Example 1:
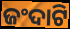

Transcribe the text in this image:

ଜଂଦାଟି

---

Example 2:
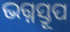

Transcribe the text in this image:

ଭଗ୍ନସ୍ତୂପ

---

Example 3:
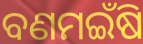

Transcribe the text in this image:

ବଣମଇଁଷି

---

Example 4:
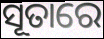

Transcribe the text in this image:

ସୂତାରେ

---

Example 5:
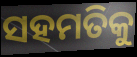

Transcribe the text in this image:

ସହମତିକୁ